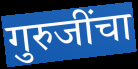
गुरुजींचा